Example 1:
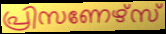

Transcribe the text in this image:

പ്രിസണേഴ്സ്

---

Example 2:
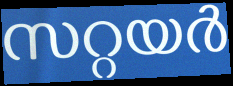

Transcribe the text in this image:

സറ്റയർ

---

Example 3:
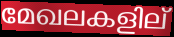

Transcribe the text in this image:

മേഖലകളില്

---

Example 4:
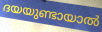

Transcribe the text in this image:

ദയയുണ്ടായാൽ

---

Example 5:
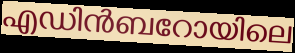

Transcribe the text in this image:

എഡിൻബറോയിലെ